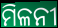
ମିଳନୀ